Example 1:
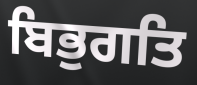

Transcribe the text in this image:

ਬਿਭੁਗਤਿ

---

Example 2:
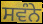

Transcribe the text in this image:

ਸਵੰਨੇ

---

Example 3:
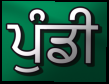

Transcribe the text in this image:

ਪੁੰਡੀ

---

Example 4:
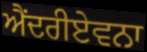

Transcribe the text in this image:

ਐਂਦਰੀਏਵਨਾ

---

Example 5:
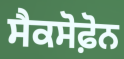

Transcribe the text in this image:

ਸੈਕਸੋਫ਼ੋਨ